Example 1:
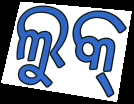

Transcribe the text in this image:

ଲୁକ୍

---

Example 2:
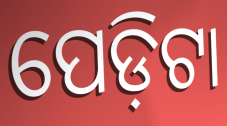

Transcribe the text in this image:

ପେଡ଼ିଟା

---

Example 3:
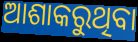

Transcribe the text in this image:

ଆଶାକରୁଥିବା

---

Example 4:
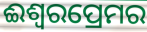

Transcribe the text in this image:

ଈଶ୍ୱରପ୍ରେମର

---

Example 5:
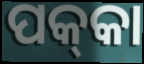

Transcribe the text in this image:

ପକ୍‍କା